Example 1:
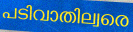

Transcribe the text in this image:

പടിവാതില്വരെ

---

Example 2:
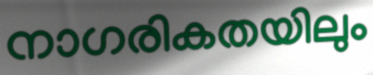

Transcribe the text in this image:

നാഗരികതയിലും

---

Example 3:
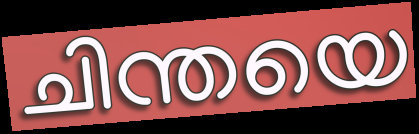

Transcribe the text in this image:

ചിന്തയെ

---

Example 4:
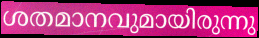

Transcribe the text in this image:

ശതമാനവുമായിരുന്നു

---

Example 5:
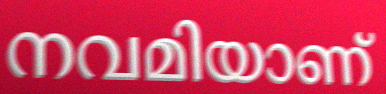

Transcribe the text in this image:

നവമിയാണ്